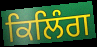
ਕਿਲਿੰਗ